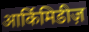
आर्किमिडीज़